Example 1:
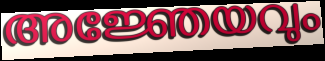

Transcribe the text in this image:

അജ്ഞേയവും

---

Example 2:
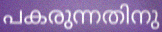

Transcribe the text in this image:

പകരുന്നതിനു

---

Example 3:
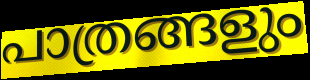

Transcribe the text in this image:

പാത്രങ്ങളും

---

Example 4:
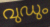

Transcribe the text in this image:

വുഡും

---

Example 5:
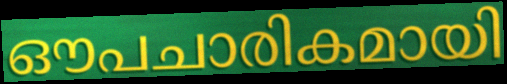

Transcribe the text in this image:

ഔപചാരികമായി